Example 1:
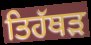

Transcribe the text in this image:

ਤਿਹੱਥੜ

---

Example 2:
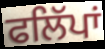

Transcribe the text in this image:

ਫਲਿੱਪਾਂ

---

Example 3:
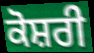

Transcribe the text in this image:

ਕੋਸ਼ਰੀ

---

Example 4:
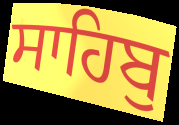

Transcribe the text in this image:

ਸਾਹਿਬੁ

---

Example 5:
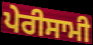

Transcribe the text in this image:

ਪੇਰੀਸਾਮੀ